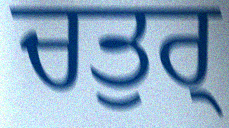
ਚਤੁਰ੍